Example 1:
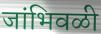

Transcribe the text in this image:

जांभिवळी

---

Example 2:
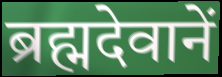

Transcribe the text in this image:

ब्रह्मदेवानें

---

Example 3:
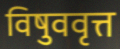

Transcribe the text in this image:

विषुववृत्त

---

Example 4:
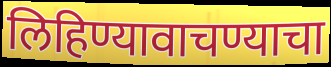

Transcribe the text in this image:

लिहिण्यावाचण्याचा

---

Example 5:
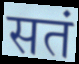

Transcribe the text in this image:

सतं